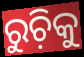
ରୁଚ଼ିକୁ